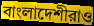
বাংলাদেশীরাও